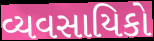
વ્યવસાયિકો